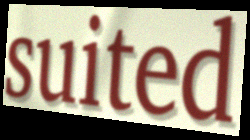
suited